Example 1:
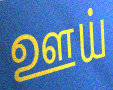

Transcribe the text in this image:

ஊய்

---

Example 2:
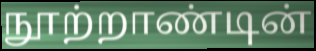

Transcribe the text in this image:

நூற்றாண்டின்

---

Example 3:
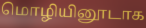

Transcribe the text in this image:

மொழியினூடாக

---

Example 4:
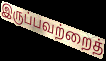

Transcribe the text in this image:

இருப்பவற்றைத்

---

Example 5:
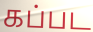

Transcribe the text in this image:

கப்பட